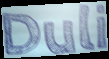
Duli